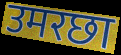
उमरछा